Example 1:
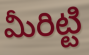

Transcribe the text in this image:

మీరిట్టి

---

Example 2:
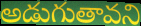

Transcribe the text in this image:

అడుగుతావని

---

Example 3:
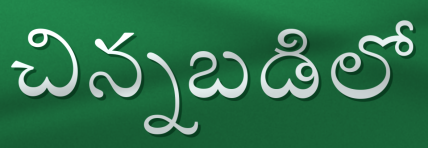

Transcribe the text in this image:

చిన్నబడిలో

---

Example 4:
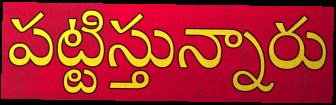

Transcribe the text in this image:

పట్టిస్తున్నారు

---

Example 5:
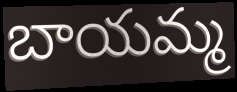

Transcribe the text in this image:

బాయమ్మ